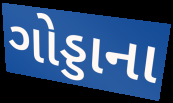
ગોડ્ડાના